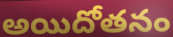
అయిదోతనం